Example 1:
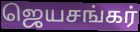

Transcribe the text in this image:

ஜெயசங்கர்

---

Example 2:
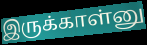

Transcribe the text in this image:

இருக்காள்னு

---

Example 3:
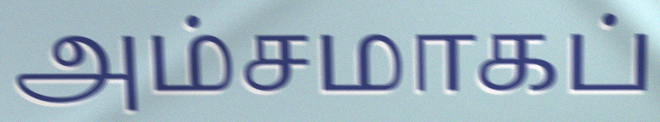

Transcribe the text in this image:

அம்சமாகப்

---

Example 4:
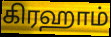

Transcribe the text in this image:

கிரஹாம்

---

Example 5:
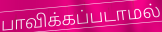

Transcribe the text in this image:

பாவிக்கப்படாமல்